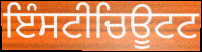
ਇੰਸਟੀਚਿਊਟਟ